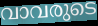
വാവരുടെ